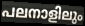
പലനാളിലും